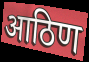
आठिण